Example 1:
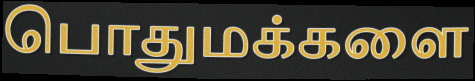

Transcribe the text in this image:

பொதுமக்களை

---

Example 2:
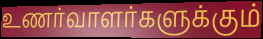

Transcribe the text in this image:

உணர்வாளர்களுக்கும்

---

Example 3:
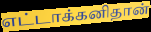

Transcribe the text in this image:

எட்டாக்கனிதான்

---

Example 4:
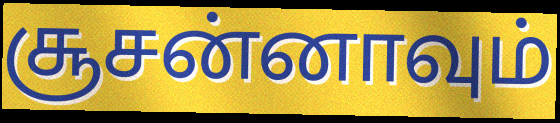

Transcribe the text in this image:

சூசன்னாவும்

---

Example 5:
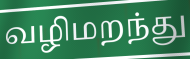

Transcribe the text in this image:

வழிமறந்து